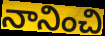
నానించి